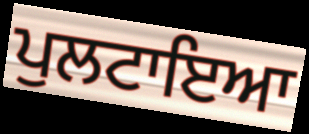
ਪੁਲਟਾਇਆ